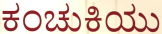
ಕಂಚುಕಿಯು